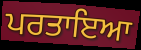
ਪਰਤਾਇਆ